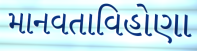
માનવતાવિહોણા